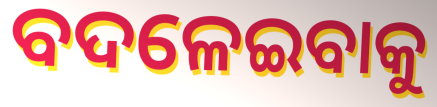
ବଦଳେଇବାକୁ